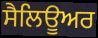
ਸੈਲਿਊਅਰ